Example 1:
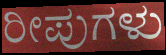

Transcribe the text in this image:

ರೀಪುಗಳು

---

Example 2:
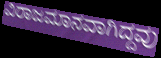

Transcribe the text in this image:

ವಿರಾಜಮಾನವಾಗಿದ್ದವು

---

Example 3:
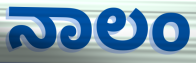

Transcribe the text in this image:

ನಾಲಂ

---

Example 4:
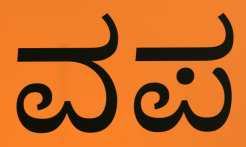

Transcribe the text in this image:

ವಪ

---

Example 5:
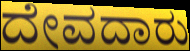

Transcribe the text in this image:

ದೇವದಾರು